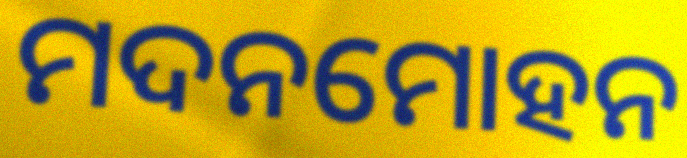
ମଦନମୋହନ